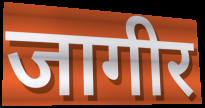
जागीर